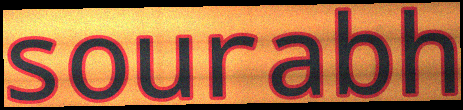
sourabh